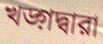
খড়্গদ্বারা